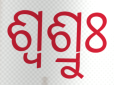
ଶ୍ଵଶ୍ରୁଃ